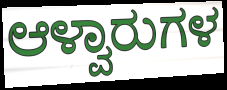
ಆಳ್ವಾರುಗಳ